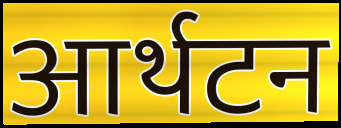
आर्थटन